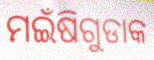
ମଇଁଷିଗୁଡାକ